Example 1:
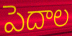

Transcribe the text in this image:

పెదాల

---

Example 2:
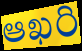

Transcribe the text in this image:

ఆఖరి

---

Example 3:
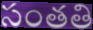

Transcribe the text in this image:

సంతతి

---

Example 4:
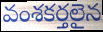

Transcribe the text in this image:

వంశకర్తలైన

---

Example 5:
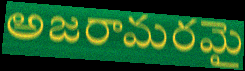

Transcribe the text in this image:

అజరామరమై